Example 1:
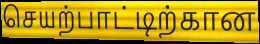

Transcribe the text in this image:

செயற்பாட்டிற்கான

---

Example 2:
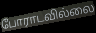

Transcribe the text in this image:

போராடவில்லை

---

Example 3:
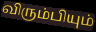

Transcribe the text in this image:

விரும்பியும்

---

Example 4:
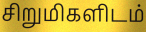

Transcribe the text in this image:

சிறுமிகளிடம்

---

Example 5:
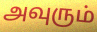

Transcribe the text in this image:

அவுரும்